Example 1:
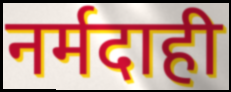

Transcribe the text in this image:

नर्मदाही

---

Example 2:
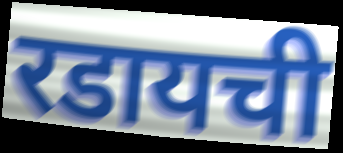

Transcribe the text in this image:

रडायची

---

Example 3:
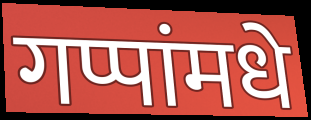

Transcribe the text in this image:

गप्पांमधे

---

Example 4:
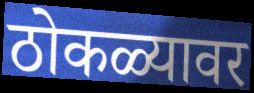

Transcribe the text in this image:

ठोकळ्यावर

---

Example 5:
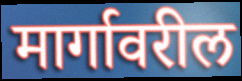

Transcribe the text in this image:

मार्गावरील